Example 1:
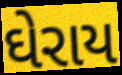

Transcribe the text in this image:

ઘેરાય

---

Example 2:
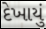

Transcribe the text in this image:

દેખાયું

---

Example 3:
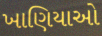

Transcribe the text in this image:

ખાણિયાઓ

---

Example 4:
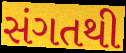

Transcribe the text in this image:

સંગતથી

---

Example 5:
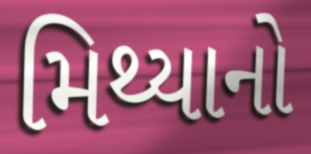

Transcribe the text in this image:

મિથ્યાનો